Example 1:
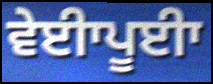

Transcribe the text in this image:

ਵੇਈਾਪੂਈਾ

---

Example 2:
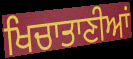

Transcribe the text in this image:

ਖਿਚਾਤਾਣੀਆਂ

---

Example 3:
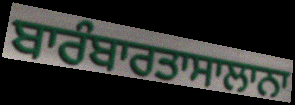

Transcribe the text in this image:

ਬਾਰੰਬਾਰਤਾਸਾਲਾਨਾ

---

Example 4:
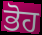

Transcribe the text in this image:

ਭੋਹ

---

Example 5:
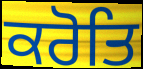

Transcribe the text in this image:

ਕਰੋਤਿ